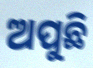
ଅପୁଛି